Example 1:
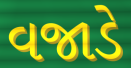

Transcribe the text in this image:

વજાડે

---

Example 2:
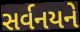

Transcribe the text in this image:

સર્વનયને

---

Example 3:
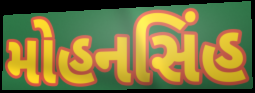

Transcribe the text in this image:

મોહનસિંહ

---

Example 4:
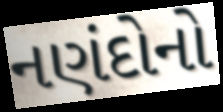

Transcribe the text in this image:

નણંદોનો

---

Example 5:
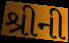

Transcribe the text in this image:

શ્રીની